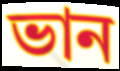
ভান